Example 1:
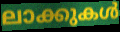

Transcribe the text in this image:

ലാക്കുകൾ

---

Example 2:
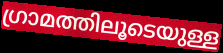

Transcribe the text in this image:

ഗ്രാമത്തിലൂടെയുള്ള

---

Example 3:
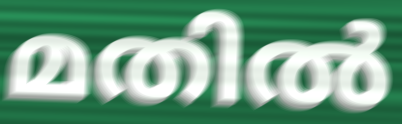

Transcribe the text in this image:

മതിൽ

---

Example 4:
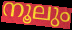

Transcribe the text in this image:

നൂലും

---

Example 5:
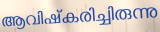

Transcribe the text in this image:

ആവിഷ്‌കരിച്ചിരുന്നു